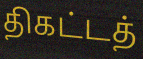
திகட்டத்